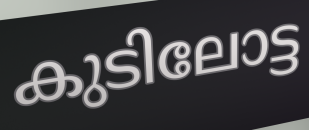
കുടിലോട്ട